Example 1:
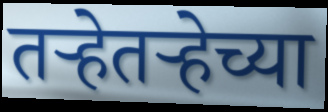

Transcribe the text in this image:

तऱ्हेतऱ्हेच्या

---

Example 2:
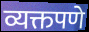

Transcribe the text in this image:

व्यक्तपणे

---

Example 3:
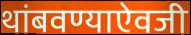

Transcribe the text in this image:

थांबवण्याऐवजी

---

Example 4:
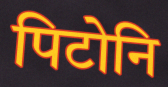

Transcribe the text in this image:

पिटोनि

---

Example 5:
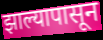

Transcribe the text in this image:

झाल्यापासून